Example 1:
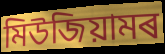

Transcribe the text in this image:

মিউজিয়ামৰ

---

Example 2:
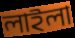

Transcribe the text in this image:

লাইলা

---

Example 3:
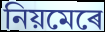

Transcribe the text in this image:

নিয়মেৰে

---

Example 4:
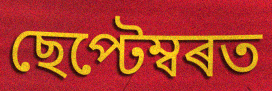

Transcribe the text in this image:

ছেপ্টেম্বৰত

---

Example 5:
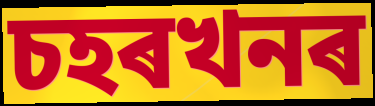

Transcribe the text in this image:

চহৰখনৰ